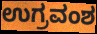
ಉಗ್ರವಂಶ